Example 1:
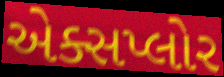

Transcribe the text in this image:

એક્સપ્લોર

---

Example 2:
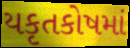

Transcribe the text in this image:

યકૃતકોષમાં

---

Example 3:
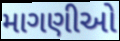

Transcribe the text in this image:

માગણીઓ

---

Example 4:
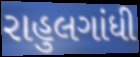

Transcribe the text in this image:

રાહુલગાંધી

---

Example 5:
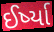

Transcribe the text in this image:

ઈર્ષ્યા